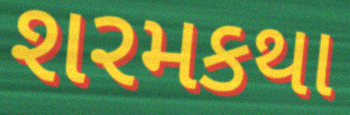
શરમકથા